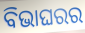
ବିଭାଘରର